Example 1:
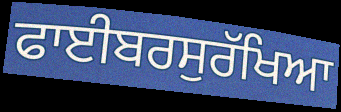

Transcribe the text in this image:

ਫਾਈਬਰਸੁਰੱਖਿਆ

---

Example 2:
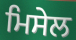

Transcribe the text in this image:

ਮਿਸੇਲ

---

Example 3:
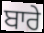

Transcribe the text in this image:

ਬਾਰੇ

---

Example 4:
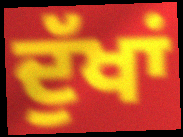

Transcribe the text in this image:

ਦੁੱਖਾਂ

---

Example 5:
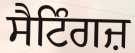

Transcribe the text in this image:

ਸੈਟਿੰਗਜ਼